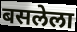
बसलेला